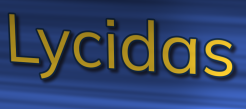
Lycidas